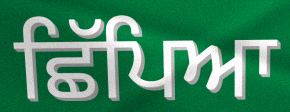
ਛਿੱਪਿਆ